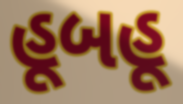
હૂબહૂ